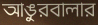
আঙুরবালার